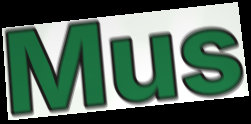
Mus